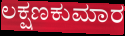
ಲಕ್ಷಣಕುಮಾರ